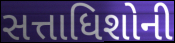
સત્તાધિશોની